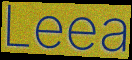
Leea